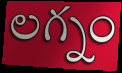
లగ్నం